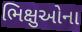
ભિક્ષુઓના